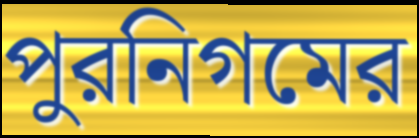
পুরনিগমের